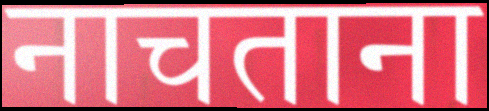
नाचताना